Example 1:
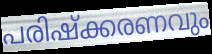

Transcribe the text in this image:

പരിഷ്ക്കരണവും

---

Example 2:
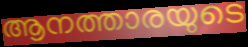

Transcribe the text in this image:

ആനത്താരയുടെ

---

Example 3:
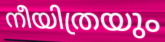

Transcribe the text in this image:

നീയിത്രയും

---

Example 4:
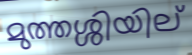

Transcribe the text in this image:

മുത്തശ്ശിയില്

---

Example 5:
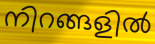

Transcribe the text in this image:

നിറങ്ങളിൽ